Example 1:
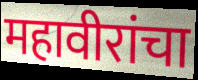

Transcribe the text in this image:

महावीरांचा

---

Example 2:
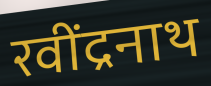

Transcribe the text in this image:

रवींद्रनाथ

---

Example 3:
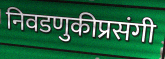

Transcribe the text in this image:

निवडणुकीप्रसंगी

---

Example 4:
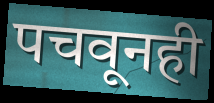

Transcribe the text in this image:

पचवूनही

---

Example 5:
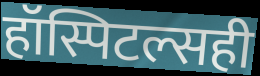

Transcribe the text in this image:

हॉस्पिटल्सही